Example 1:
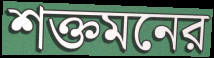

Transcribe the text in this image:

শক্তমনের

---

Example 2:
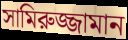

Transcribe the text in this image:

সামিরুজ্জামান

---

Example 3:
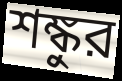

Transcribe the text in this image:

শঙ্কুর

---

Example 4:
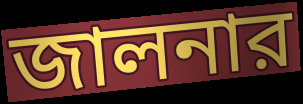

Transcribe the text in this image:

জালনার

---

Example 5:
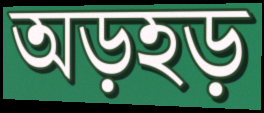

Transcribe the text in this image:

অড়হড়